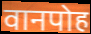
वानपोह